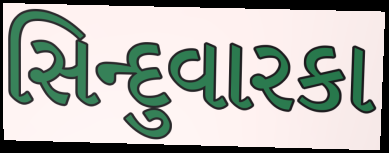
સિન્દુવારકા